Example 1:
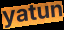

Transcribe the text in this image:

yatun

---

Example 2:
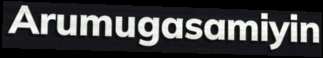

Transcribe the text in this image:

Arumugasamiyin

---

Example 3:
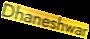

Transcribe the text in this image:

Dhaneshwar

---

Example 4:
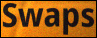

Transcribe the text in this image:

Swaps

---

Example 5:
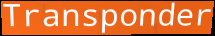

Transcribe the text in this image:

Transponder